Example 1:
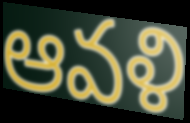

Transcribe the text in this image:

ఆవళి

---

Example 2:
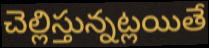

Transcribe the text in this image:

చెల్లిస్తున్నట్లయితే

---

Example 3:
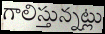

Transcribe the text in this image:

గాలిస్తున్నట్లు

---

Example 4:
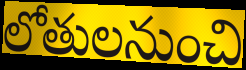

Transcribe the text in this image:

లోతులనుంచి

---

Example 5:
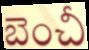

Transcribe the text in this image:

బెంచీ